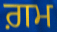
ਗ਼ਮ